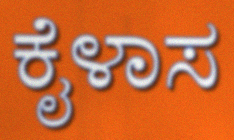
ಕೈಳಾಸ